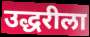
उद्धरीला